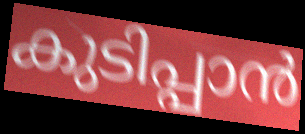
കുടിപ്പാൻ